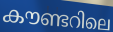
കൗണ്ടറിലെ